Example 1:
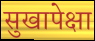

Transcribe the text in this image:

सुखापेक्षा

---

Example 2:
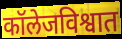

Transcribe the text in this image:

कॉलेजविश्वात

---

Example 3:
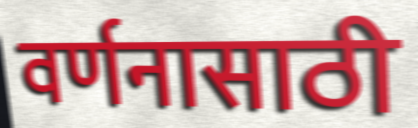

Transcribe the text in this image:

वर्णनासाठी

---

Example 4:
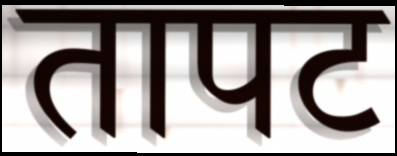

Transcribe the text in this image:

तापट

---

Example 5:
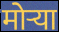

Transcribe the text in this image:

मोर्‍या